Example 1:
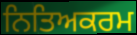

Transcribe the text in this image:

ਨਿਤਿਅਕਰਮ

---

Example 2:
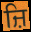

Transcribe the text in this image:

ਜ਼ਿ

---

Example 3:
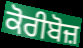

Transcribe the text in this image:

ਕੋਰੀਬੋਜ਼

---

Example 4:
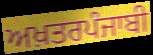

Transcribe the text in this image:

ਅਖ਼ਤਰਪੰਜਾਬੀ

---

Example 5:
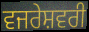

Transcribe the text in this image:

ਵਜਰੇਸ਼ਵਰੀ